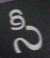
సీ